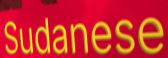
Sudanese